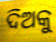
ଦିଅକୁ